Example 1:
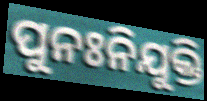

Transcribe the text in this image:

ପୁନଃନିଯୁକ୍ତି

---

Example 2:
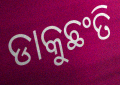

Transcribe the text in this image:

ଡାକୁଛଂତି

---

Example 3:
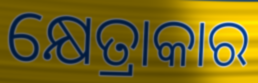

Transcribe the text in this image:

କ୍ଷେତ୍ରାକାର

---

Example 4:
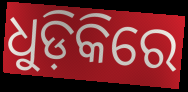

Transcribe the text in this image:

ଧୁଡ଼ିକିରେ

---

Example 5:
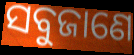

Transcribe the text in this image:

ସବୁଜାଣେ